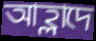
আহ্লাদে